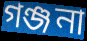
গঞ্জনা